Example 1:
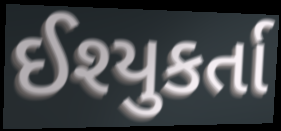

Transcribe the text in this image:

ઈશ્યુકર્તા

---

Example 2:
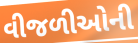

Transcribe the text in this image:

વીજળીઓની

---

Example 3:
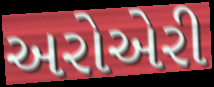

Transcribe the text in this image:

અરોએરી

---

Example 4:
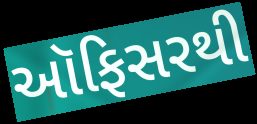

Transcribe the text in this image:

ઑફિસરથી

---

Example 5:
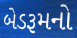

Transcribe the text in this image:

બેડરૂમનો